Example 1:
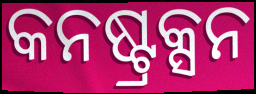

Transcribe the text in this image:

କନଷ୍ଟ୍ରକ୍ସନ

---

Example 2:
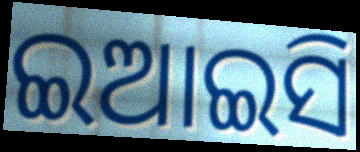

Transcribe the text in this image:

ଇଆଇସି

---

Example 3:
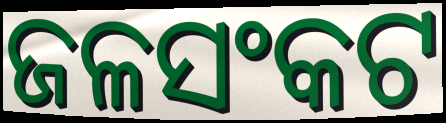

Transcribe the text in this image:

ଜଳସଂକଟ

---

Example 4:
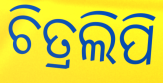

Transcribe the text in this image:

ଚିତ୍ରଲିପି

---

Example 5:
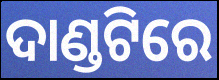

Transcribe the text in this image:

ଦାଣ୍ଡଟିରେ